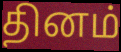
தினம்